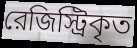
রেজিস্ট্রিকৃত